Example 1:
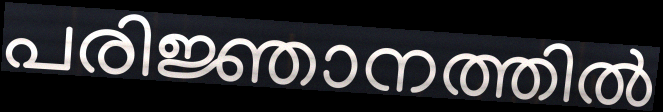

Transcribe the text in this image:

പരിജ്ഞാനത്തിൽ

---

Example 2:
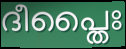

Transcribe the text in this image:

ദീപ്തൈഃ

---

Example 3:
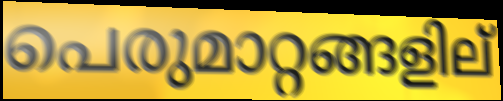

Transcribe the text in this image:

പെരുമാറ്റങ്ങളില്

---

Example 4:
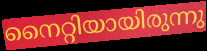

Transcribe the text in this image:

നൈറ്റിയായിരുന്നു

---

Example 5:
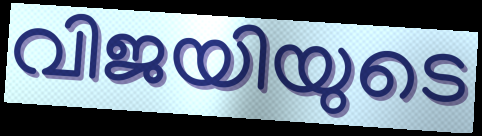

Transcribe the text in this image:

വിജയിയുടെ